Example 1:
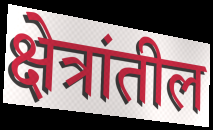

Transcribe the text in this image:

क्षेत्रांतील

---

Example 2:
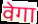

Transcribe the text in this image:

वेगा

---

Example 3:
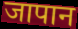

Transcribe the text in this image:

जापान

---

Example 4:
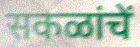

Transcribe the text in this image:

सकळांचें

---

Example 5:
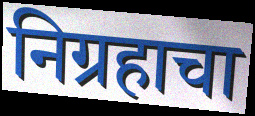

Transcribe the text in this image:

निग्रहाचा